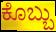
ಕೊಬ್ಬು